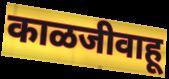
काळजीवाहू